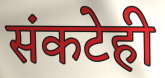
संकटेही